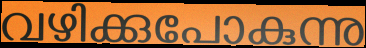
വഴിക്കുപോകുന്നു